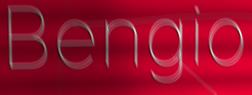
Bengio